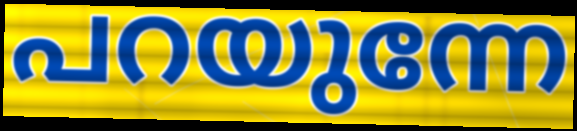
പറയുന്നേ